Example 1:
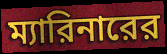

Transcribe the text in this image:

ম্যারিনারের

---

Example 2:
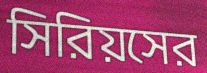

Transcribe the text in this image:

সিরিয়সের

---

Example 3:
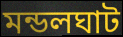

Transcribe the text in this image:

মন্ডলঘাট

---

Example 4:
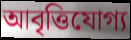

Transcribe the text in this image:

আবৃত্তিযোগ্য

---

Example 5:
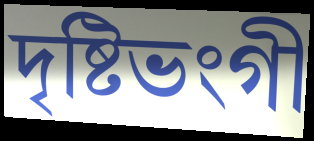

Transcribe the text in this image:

দৃষ্টিভংগী